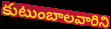
కుటుంబాలవారిని